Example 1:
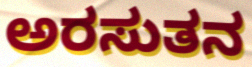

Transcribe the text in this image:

ಅರಸುತನ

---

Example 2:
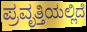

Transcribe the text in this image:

ಪ್ರವೃತ್ತಿಯಲ್ಲಿದೆ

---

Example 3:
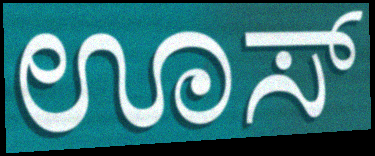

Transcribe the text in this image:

ಊಸ್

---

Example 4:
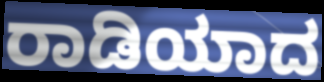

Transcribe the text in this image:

ರಾಡಿಯಾದ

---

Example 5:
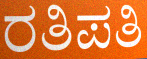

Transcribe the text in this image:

ರತಿಪತಿ